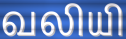
வலியி